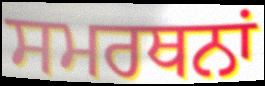
ਸਮਰਥਨਾਂ